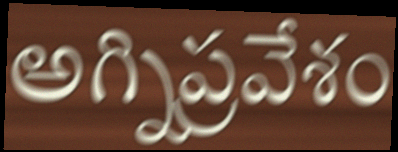
అగ్నిప్రవేశం